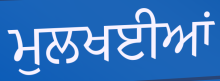
ਮੁਲਖਈਆਂ